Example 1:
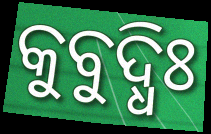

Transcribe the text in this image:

କୁବୁଦ୍ଧିଃ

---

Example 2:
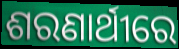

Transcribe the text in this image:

ଶରଣାର୍ଥୀରେ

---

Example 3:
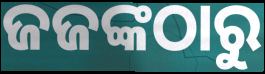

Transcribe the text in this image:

ଜଜଙ୍କଠାରୁ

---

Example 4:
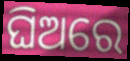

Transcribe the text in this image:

ଘିଅରେ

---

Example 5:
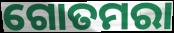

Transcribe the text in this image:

ଗୋତମରା